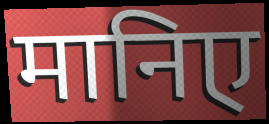
मानिए